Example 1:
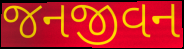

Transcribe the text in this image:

જનજીવન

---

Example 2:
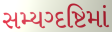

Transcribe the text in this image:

સમ્યગ્દષ્ટિમાં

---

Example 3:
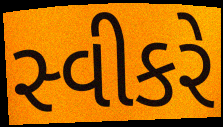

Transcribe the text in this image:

સ્વીકરે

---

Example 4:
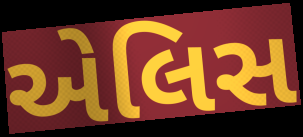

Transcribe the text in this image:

એલિસ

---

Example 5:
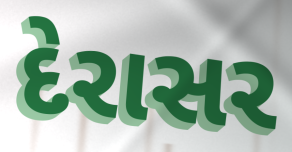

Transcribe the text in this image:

દેરાસર